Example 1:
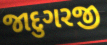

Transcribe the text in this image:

જાદુગરજી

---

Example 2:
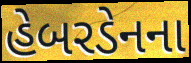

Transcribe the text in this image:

હેબરડેનના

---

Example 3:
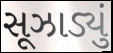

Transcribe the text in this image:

સૂઝાડ્યું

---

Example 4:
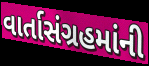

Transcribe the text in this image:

વાર્તાસંગ્રહમાંની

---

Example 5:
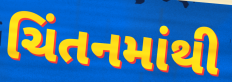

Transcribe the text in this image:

ચિંતનમાંથી